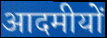
आदमीयों